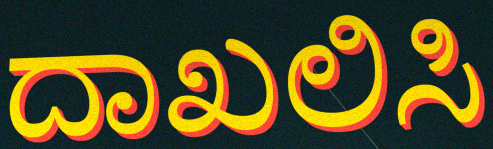
ದಾಖಲಿಸಿ